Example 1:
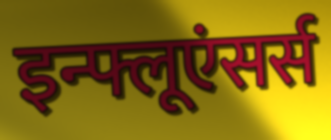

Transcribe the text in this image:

इन्फ्लूएंसर्स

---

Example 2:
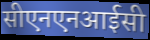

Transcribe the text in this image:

सीएनएनआईसी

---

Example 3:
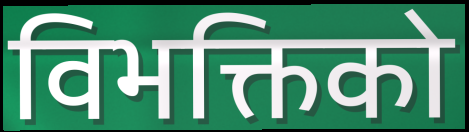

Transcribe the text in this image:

विभक्तिको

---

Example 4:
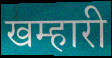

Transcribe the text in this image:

खम्हारी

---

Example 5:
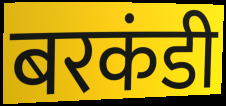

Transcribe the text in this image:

बरकंडी